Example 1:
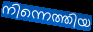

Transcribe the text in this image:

നിന്നെത്തിയ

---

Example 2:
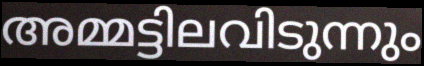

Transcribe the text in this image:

അമ്മട്ടിലവിടുന്നും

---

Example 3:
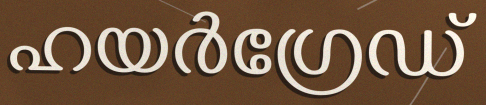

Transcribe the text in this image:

ഹയർഗ്രേഡ്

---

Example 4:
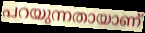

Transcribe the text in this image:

പറയുന്നതായാണ്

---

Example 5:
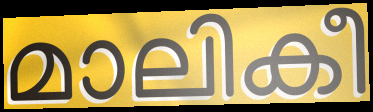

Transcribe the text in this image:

മാലികീ